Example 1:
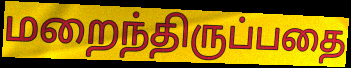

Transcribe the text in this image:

மறைந்திருப்பதை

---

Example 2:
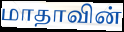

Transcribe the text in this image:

மாதாவின்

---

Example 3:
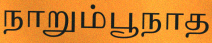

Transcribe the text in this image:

நாறும்பூநாத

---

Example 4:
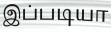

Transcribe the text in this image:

இப்படியா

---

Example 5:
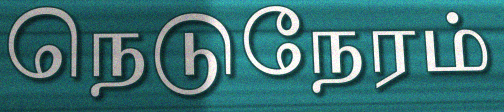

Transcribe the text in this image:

நெடுநேரம்